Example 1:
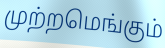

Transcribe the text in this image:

முற்றமெங்கும்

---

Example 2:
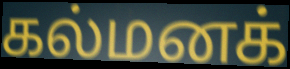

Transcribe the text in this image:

கல்மனக்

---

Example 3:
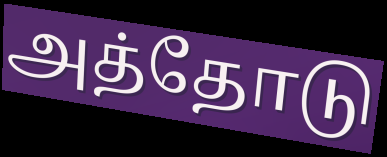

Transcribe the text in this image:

அத்தோடு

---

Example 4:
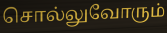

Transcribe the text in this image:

சொல்லுவோரும்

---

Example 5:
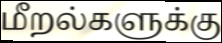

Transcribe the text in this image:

மீறல்களுக்கு